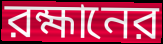
রহ্মানের